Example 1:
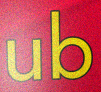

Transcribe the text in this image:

ub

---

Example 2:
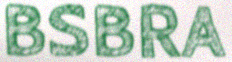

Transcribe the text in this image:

BSBRA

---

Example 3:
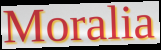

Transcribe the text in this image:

Moralia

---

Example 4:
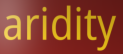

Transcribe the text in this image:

aridity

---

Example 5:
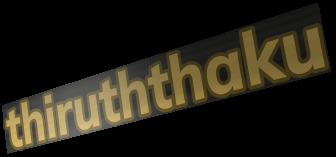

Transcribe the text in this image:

thiruththaku